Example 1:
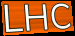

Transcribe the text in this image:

LHC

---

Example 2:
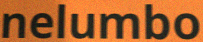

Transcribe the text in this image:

nelumbo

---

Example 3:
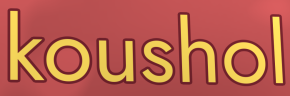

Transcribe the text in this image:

koushol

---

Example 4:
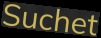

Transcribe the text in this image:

Suchet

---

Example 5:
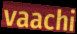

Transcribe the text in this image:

vaachi